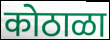
कोठाळा